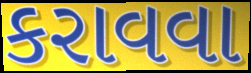
કરાવવા